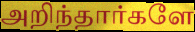
அறிந்தார்களே